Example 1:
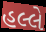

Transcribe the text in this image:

હલ્લે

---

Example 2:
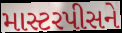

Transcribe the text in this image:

માસ્ટરપીસને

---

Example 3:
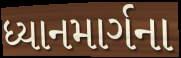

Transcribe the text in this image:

ધ્યાનમાર્ગના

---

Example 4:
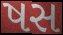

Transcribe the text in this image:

ષસ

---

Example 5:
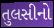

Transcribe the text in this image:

તુલસીનો